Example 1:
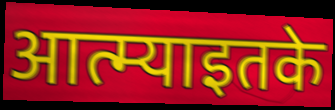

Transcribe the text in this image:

आत्म्याइतके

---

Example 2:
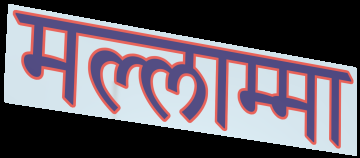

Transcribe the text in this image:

मल्लाम्मा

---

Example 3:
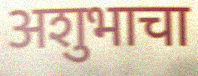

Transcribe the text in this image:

अशुभाचा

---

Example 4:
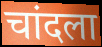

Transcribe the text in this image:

चांदला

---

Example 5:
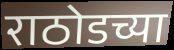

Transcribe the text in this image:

राठोडच्या